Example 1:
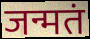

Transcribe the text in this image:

जन्मतं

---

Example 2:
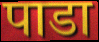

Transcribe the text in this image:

पाडा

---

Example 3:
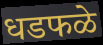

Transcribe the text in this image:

धडफळे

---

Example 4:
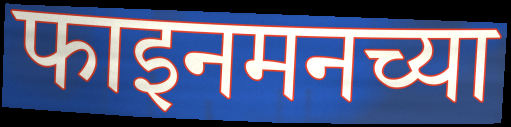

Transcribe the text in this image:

फाइनमनच्या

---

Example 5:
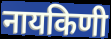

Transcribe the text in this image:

नायकिणी